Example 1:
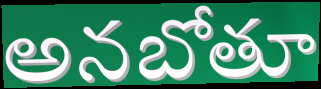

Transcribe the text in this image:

అనబోతూ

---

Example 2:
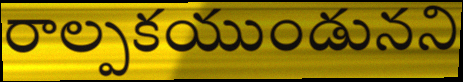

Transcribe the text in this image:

రాల్పకయుండునని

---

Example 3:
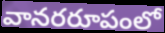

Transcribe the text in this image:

వానరరూపంలో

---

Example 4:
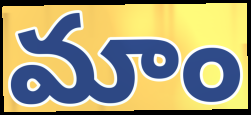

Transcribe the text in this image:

మాం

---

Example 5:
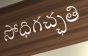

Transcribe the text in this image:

సోధిగచ్ఛతి